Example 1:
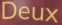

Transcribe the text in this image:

Deux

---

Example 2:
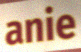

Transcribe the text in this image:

anie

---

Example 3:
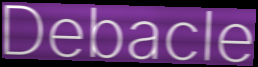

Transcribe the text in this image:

Debacle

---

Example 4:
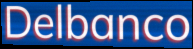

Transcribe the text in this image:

Delbanco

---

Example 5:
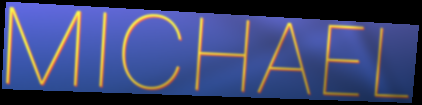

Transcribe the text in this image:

MICHAEL